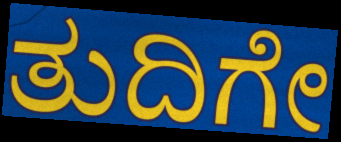
ತುದಿಗೇ